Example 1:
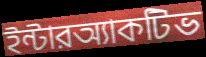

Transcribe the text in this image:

ইন্টারঅ্যাকটিভ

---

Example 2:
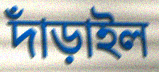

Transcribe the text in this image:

দাঁড়াইল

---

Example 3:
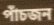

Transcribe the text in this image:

পাঁচজন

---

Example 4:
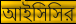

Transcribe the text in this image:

আইসিসির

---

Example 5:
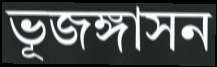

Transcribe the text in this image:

ভূজঙ্গাসন